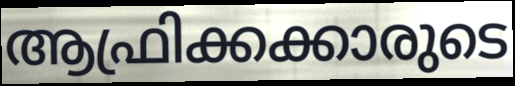
ആഫ്രിക്കക്കാരുടെ